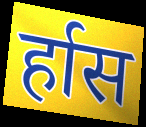
र्हास